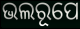
ଭଲରୂପେ